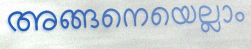
അങ്ങനെയെല്ലാം